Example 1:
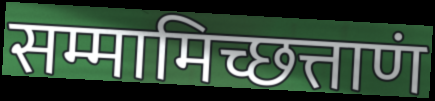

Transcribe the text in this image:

सम्मामिच्छत्ताणं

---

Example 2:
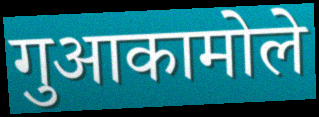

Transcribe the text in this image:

गुआकामोले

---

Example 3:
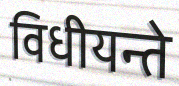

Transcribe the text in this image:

विधीयन्ते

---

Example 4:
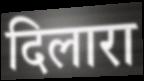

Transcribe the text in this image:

दिलारा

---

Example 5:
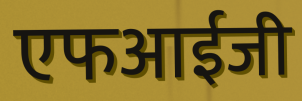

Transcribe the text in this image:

एफआईजी